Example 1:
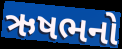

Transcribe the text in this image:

ઋષભનો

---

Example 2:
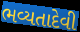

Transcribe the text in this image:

ભવ્યતાદેવી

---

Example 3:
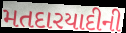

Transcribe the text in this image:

મતદારયાદીની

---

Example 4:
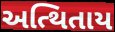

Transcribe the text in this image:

અત્થિતાય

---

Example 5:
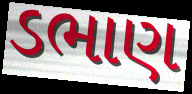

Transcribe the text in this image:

ડભાણ